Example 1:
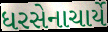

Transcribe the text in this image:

ધરસેનાચાર્યે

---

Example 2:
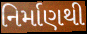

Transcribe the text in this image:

નિર્માણથી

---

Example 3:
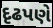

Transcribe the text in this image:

દૃઢપણે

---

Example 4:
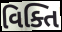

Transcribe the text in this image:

વિક્તિ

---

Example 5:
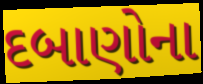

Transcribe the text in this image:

દબાણોના